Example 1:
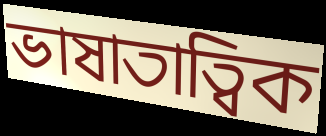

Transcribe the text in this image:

ভাষাতাত্বিক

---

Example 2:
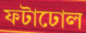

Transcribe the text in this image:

ফটাঢোল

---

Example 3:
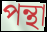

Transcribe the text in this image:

পন্থা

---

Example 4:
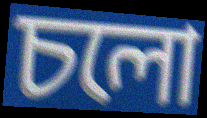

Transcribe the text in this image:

চলো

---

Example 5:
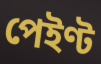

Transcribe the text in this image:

পেইণ্ট